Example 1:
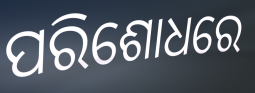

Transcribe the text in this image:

ପରିଶୋଧରେ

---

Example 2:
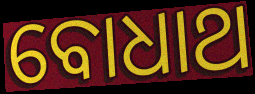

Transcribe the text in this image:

ବୋଧାଥ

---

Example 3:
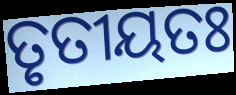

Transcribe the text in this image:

ତୃତୀୟତଃ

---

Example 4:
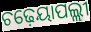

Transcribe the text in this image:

ଚଢ଼େୟାପଲ୍ଲୀ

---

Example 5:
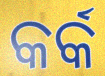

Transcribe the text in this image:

କର୍କ